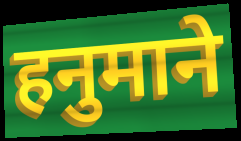
हनुमाने